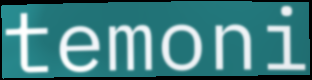
temoni